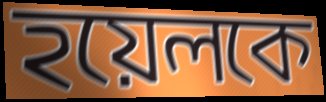
হয়েলকে